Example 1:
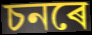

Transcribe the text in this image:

চনৰে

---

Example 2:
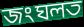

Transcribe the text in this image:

জংঘলত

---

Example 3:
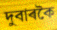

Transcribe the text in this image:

দুবাৰকৈ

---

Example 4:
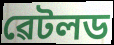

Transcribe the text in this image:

ৱেটলড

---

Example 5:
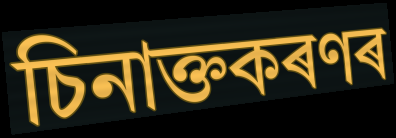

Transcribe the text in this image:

চিনাক্তকৰণৰ